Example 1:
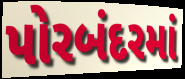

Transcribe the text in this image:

પોરબંદરમાં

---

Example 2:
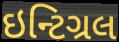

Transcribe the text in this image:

ઇન્ટિગ્રલ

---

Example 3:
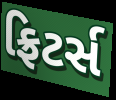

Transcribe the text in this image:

ફ્રિટર્સ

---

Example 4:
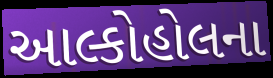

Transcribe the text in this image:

આલ્કોહોલના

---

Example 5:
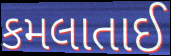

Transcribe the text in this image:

કમલાતાઈ